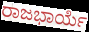
ರಾಜಭಾರ್ಯೆ